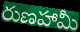
రుణహామీ